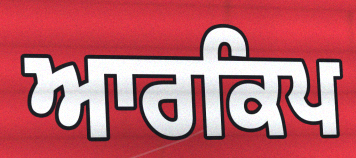
ਆਰਕਿਪ